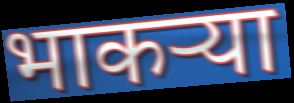
भाकऱ्या